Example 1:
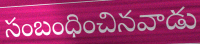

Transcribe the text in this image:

సంబంధించినవాడు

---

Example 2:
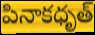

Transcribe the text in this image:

పినాకధృత్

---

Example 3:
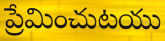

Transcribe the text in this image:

ప్రేమించుటయు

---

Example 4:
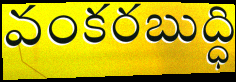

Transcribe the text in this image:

వంకరబుద్ధి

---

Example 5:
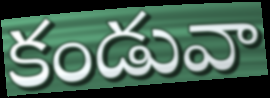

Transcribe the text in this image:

కండువా